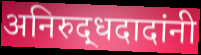
अनिरुद्धदादांनी